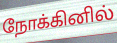
நோக்கினில்